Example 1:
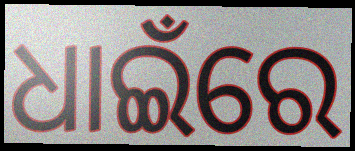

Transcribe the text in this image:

ଧାଇଁରେ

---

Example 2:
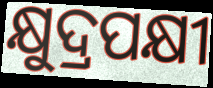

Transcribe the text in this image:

କ୍ଷୁଦ୍ରପକ୍ଷୀ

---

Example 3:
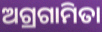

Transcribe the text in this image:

ଅଗ୍ରଗାମିତା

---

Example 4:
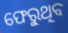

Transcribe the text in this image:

ଫେରୁଥିବ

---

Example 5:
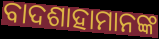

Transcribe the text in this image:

ବାଦଶାହାମାନଙ୍କ